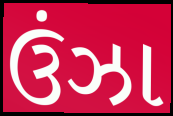
ઉંઝા